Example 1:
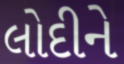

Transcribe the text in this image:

લોદીને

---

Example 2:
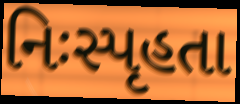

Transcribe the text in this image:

નિઃસ્પૃહતા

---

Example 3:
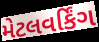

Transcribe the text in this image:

મેટલવર્કિંગ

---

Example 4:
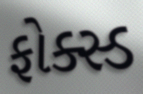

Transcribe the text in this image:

ફોક્સ્ડ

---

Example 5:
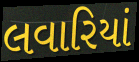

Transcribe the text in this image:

લવારિયાં